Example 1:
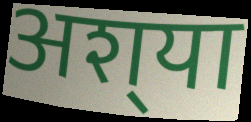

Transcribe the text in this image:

अश्या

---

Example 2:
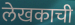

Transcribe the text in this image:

लेखकाची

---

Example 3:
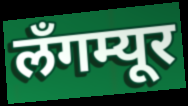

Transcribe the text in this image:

लँगम्यूर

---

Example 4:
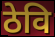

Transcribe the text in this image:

ठेवि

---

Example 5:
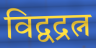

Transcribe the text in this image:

विद्वद्रत्न